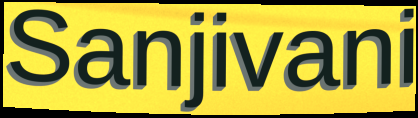
Sanjivani